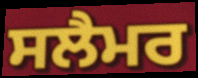
ਸਲੈਮਰ